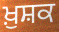
ਖ਼ੁਸ਼ਕ